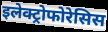
इलेक्ट्रोफोरेसिस